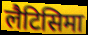
लैटिसिमा